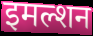
इमल्शन